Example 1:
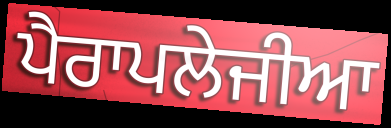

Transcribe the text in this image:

ਪੈਰਾਪਲੇਜੀਆ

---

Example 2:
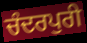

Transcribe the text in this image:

ਚੰਦਰਪੁਰੀ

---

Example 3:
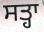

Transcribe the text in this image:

ਸਤ੍ਹਾ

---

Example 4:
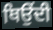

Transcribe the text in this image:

ਥਿਉਂਦੀ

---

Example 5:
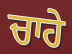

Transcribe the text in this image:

ਚਾਹੇ